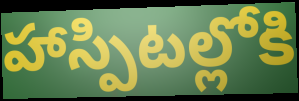
హాస్పిటల్లోకి